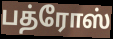
பத்ரோஸ்